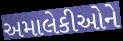
અમાલેકીઓને